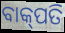
ବାକ୍‌ପତି